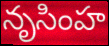
నృసింహ